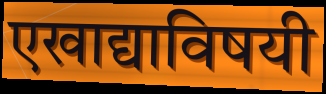
एखाद्याविषयी